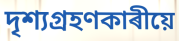
দৃশ্যগ্ৰহণকাৰীয়ে